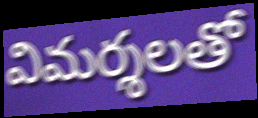
విమర్శలతో